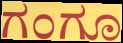
ಗಂಗೂ